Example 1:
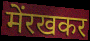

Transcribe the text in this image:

मेंरखकर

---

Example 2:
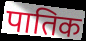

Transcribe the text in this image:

पातिक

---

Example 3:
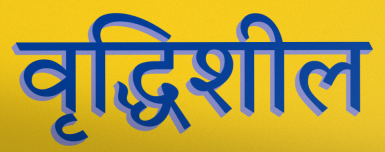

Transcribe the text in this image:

वृद्धिशील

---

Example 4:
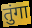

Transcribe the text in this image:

तुंगा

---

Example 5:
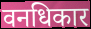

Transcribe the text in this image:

वनधिकार